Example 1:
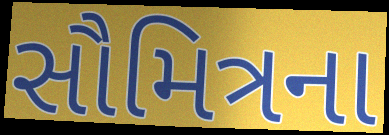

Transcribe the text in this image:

સૌમિત્રના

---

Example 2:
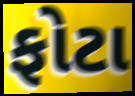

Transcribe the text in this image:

ફોટા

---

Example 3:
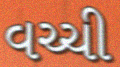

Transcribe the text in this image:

વચ્ચી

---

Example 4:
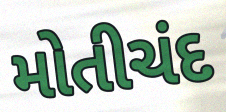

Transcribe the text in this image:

મોતીચંદ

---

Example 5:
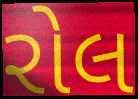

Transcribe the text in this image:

રોલ